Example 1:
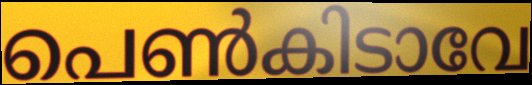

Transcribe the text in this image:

പെൺകിടാവേ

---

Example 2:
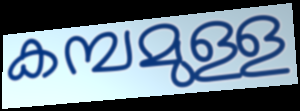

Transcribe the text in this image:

കമ്പമുള്ള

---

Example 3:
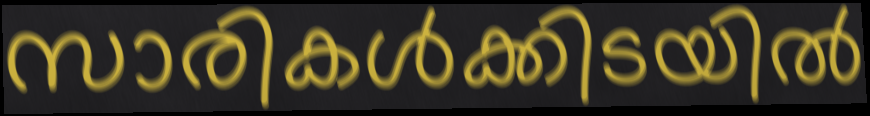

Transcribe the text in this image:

സാരികൾക്കിടയിൽ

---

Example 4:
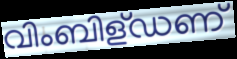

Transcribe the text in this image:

വിംബിള്ഡണ്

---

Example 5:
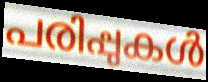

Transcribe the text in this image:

പരിപ്പുകൾ